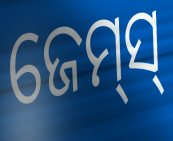
ଜେମ୍‌ସ୍